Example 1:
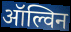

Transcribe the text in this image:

ऑल्विन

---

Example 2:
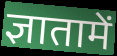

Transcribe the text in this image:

ज्ञातामें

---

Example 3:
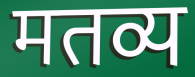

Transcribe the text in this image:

मतव्य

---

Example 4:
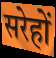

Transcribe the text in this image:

सरेहों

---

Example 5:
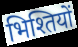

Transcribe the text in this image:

भिश्तियों